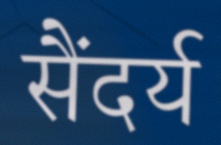
सैंदर्य